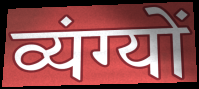
व्यंग्यों